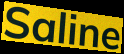
Saline